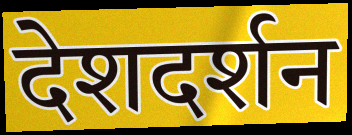
देशदर्शन